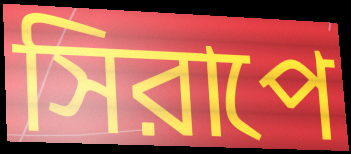
সিরাপে